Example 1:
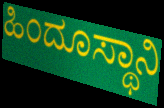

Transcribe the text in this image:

ಹಿಂದೂಸ್ಥಾನಿ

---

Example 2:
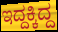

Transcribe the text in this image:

ಇದ್ದಕ್ಕಿದ್ದ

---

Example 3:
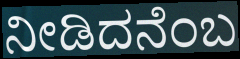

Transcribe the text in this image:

ನೀಡಿದನೆಂಬ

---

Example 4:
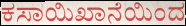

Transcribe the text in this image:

ಕಸಾಯಿಖಾನೆಯಿಂದ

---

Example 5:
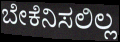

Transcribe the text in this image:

ಬೇಕೆನಿಸಲಿಲ್ಲ